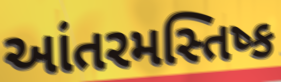
આંતરમસ્તિષ્ક